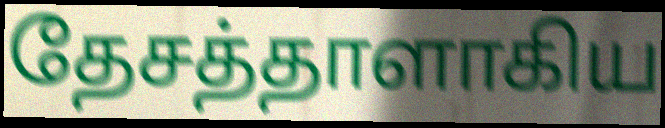
தேசத்தாளாகிய